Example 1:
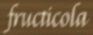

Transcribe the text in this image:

fructicola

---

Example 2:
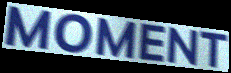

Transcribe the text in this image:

MOMENT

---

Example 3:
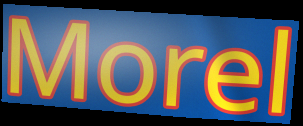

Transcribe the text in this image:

Morel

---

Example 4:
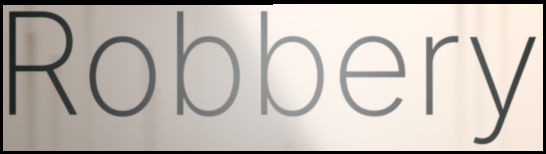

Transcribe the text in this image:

Robbery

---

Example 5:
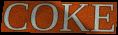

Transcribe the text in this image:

COKE